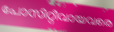
പോസിറ്റീവായവരെ